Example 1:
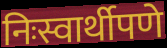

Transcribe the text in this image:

निःस्वार्थीपणे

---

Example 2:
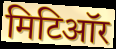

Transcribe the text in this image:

मिटिऑर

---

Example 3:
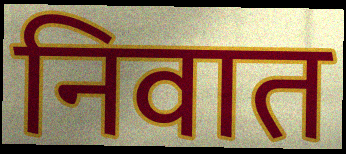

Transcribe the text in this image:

निवात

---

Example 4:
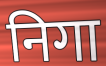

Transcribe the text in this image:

निगा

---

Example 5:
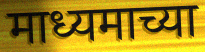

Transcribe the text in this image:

माध्यमाच्या